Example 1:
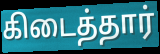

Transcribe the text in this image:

கிடைத்தார்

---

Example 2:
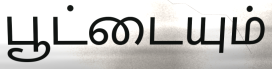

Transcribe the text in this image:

பூட்டையும்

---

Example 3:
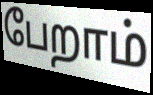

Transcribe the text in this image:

பேறாம்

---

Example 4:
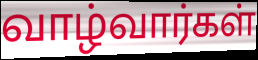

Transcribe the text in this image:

வாழ்வார்கள்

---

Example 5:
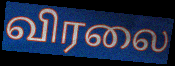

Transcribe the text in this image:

விரலை